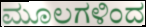
ಮೂಲಗಳಿಂದ